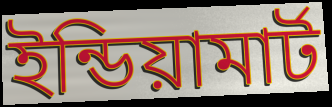
ইন্ডিয়ামার্ট